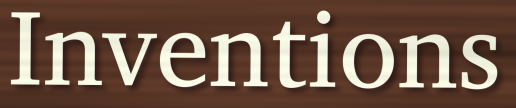
Inventions